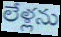
లేళ్లను